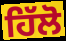
ਹਿੱਲੋ